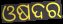
ଓଷଦର